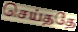
செய்ததே